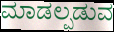
ಮಾಡಲ್ಪಡುವ